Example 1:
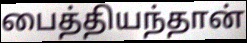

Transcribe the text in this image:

பைத்தியந்தான்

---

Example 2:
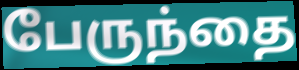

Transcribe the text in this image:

பேருந்தை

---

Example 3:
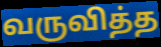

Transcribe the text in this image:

வருவித்த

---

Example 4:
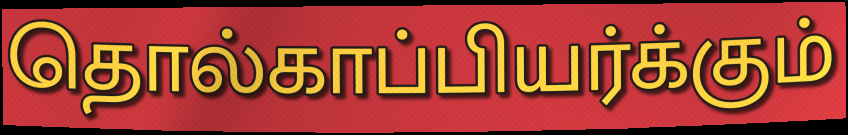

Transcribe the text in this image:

தொல்காப்பியர்க்கும்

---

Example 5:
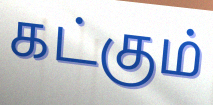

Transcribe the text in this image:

கட்கும்